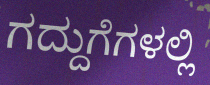
ಗದ್ದುಗೆಗಳಲ್ಲಿ